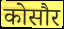
कोसौर